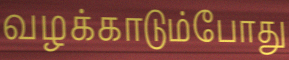
வழக்காடும்போது